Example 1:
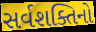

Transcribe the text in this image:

સર્વશક્તિનો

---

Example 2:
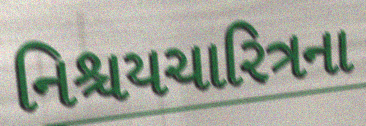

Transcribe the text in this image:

નિશ્ચયચારિત્રના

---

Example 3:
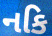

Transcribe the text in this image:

નકિ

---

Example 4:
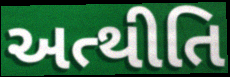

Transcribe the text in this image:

અત્થીતિ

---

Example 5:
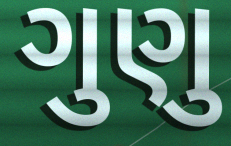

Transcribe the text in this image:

ગુણુ